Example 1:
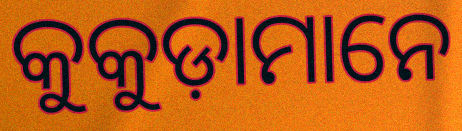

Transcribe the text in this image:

କୁକୁଡ଼ାମାନେ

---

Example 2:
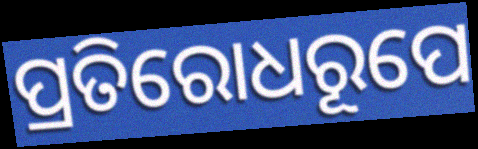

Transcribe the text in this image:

ପ୍ରତିରୋଧରୂପେ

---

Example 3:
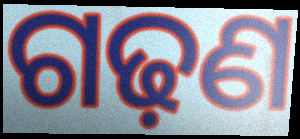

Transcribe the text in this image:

ଗଢ଼ଣ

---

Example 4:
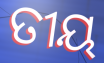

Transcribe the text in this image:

ତୀୟ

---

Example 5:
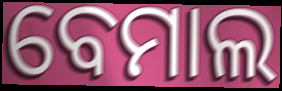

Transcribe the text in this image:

ବେମାଲ